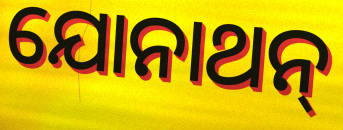
ଯୋନାଥନ୍